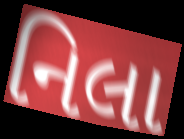
નિલા